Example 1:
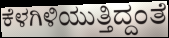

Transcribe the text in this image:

ಕೆಳಗಿಳಿಯುತ್ತಿದ್ದಂತೆ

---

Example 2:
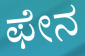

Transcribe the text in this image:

ಫೇನ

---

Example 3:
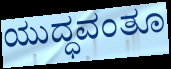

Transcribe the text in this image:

ಯುದ್ಧವಂತೂ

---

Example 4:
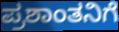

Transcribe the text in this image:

ಪ್ರಶಾಂತನಿಗೆ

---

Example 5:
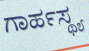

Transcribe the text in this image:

ಗಾರ್ಹಸ್ಥ್ಯ